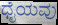
ಧೈಯವು